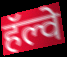
हॅल्वे